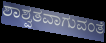
ಶಾಶ್ವತವಾಗುವಂತೆ